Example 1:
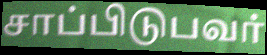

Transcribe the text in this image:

சாப்பிடுபவர்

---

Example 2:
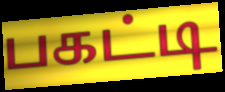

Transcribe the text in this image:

பகட்டி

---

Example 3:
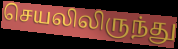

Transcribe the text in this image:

செயலிலிருந்து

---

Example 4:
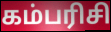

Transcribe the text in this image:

கம்பரிசி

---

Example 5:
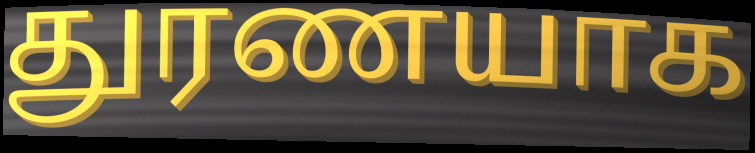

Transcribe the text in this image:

துரணயாக